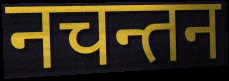
नचन्तन